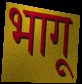
भागू